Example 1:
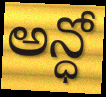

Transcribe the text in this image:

అన్ధో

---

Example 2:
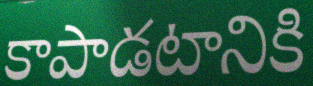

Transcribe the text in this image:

కాపాడటానికి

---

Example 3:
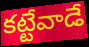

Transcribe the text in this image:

కట్టేవాడే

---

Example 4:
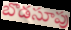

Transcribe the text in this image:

బొడసూపు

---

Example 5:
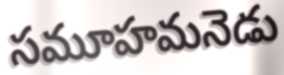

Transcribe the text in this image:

సమూహమనెడు